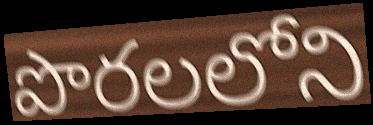
పొరలలోని